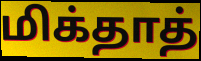
மிக்தாத்